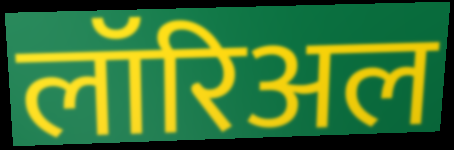
लॉरिअल